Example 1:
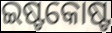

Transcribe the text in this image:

ଇଷ୍ଟକୋଷ୍ଟ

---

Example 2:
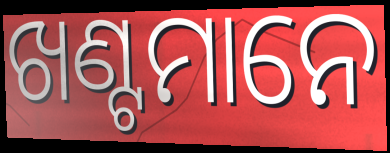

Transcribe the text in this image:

ଖଣ୍ଟମାନେ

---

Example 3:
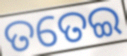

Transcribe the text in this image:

ତତେଇ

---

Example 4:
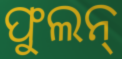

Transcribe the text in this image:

ଫୁଲନ୍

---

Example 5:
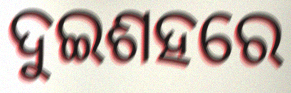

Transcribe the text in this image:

ଦୁଇଶହରେ